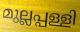
മുല്ലപ്പള്ളി